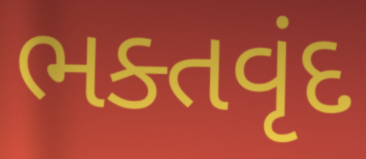
ભક્તવૃંદ